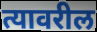
त्यावरील